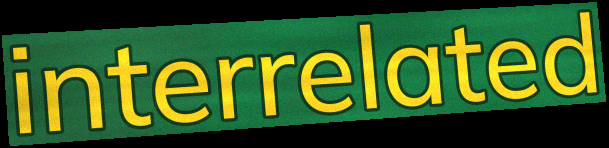
interrelated